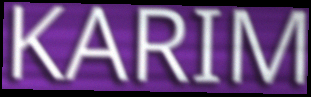
KARIM